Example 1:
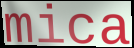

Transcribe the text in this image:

mica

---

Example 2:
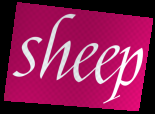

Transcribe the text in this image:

sheep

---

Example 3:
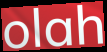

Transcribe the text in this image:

olah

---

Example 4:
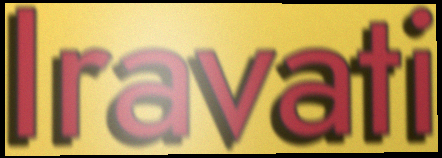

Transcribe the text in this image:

Iravati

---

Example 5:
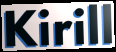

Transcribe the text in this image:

Kirill